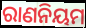
ରାଣନିୟମ